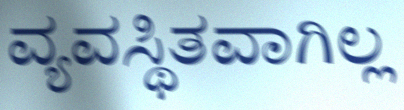
ವ್ಯವಸ್ಥಿತವಾಗಿಲ್ಲ